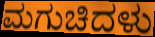
ಮಗುಚಿದಳು